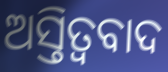
ଅସ୍ତିତ୍ବବାଦ